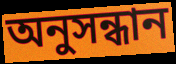
অনুসন্ধান